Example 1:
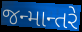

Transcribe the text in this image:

જન્માન્તરે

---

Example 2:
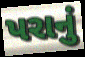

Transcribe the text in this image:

પરાનું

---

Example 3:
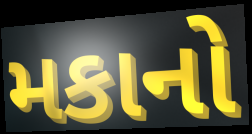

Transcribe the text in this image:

મકાનો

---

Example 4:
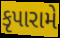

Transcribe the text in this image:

કૃપારામે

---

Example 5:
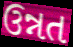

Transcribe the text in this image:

ઉન્નત